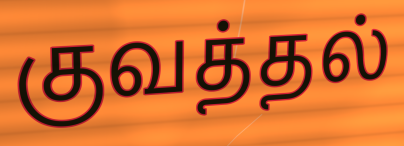
குவத்தல்